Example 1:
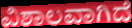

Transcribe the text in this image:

ವಿಶಾಲವಾಗಿದೆ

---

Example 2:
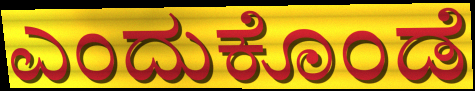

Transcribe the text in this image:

ಎಂದುಕೊಂಡೆ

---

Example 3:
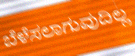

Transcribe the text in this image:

ಬೆಳೆಸಲಾಗುವುದಿಲ್ಲ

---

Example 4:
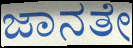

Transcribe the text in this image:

ಜಾನತೇ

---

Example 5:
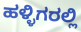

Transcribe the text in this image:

ಹಳ್ಳಿಗರಲ್ಲಿ